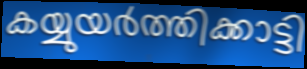
കയ്യുയർത്തിക്കാട്ടി